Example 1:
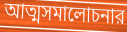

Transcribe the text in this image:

আত্মসমালোচনার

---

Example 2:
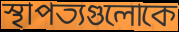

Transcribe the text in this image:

স্থাপত্যগুলোকে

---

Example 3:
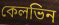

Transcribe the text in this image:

কেলভিন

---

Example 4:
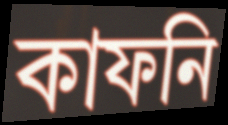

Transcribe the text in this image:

কাফনি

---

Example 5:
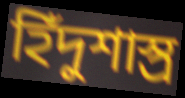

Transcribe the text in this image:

হিঁদুশাস্ত্র